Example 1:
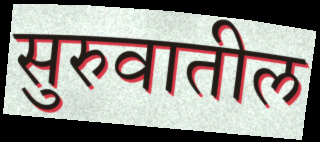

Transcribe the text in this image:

सुरुवातील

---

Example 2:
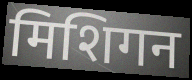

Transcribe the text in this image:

मिशिगन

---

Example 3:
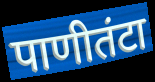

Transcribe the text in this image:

पाणीतंटा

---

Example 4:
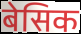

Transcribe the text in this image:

बेसिक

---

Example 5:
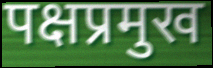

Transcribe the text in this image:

पक्षप्रमुख